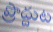
ప్రొద్దుట